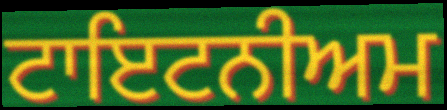
ਟਾਇਟਨੀਅਮ